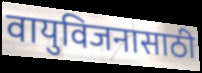
वायुविजनासाठी